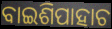
ବାଇଶିପାହାଚ